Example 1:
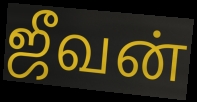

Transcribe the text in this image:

ஜீவன்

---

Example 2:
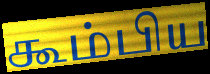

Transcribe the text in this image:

கூம்பிய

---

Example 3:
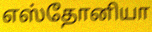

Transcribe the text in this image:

எஸ்தோனியா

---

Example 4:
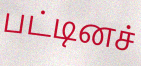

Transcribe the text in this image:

பட்டினச்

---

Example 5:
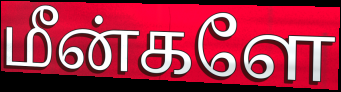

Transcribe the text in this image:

மீன்களே